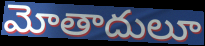
మోతాదులూ